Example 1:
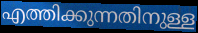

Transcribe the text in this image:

എത്തിക്കുന്നതിനുള്ള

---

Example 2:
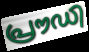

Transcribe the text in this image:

പ്രൗഡി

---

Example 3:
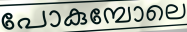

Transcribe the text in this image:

പോകുമ്പോലെ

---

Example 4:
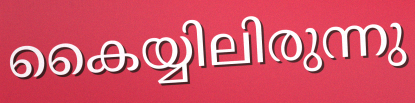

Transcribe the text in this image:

കൈയ്യിലിരുന്നു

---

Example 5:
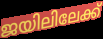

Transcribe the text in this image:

ജയിലിലേക്ക്